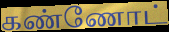
கண்ணோட்